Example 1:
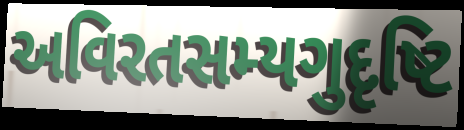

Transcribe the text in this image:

અવિરતસમ્યગુદૃષ્ટિ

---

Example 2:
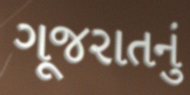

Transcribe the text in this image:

ગૂજરાતનું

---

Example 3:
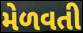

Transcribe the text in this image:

મેળવતી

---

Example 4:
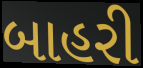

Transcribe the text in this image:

બાહરી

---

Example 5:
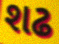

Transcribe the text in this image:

શઢ